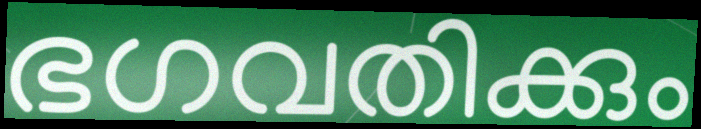
ഭഗവതിക്കും